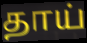
தாய்